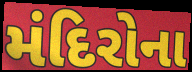
મંદિરોના